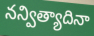
నన్విత్యాదినా